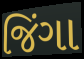
જિંગા